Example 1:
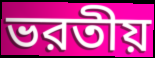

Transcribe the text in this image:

ভরতীয়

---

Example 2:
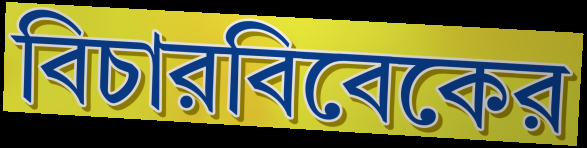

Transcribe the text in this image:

বিচারবিবেকের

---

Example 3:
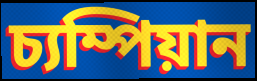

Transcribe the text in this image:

চ্যম্পিয়ান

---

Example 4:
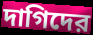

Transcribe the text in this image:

দাগিদের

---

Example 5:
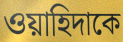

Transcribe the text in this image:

ওয়াহিদাকে